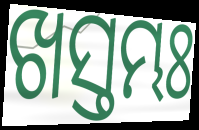
ଖସ୍ତମ୍ଭଃ